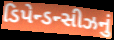
ડિપેન્ડન્સીઝનું